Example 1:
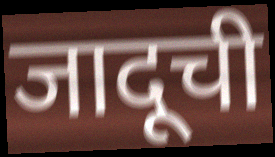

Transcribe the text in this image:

जादूची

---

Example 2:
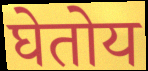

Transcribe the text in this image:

घेतोय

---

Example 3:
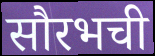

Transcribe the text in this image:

सौरभची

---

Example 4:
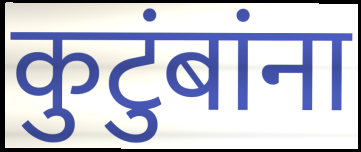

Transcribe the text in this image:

कुटुंबांना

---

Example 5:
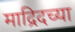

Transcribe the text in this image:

माद्रिदच्या